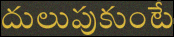
దులుపుకుంటే